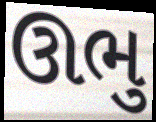
ઊભુ